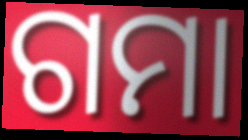
ଗମା